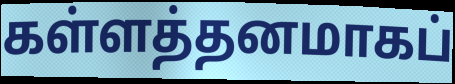
கள்ளத்தனமாகப்